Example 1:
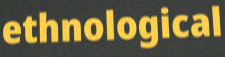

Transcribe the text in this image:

ethnological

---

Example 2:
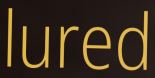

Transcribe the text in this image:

lured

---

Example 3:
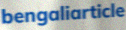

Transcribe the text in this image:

bengaliarticle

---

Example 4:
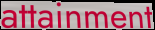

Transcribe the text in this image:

attainment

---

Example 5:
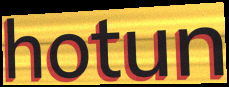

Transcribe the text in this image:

hotun